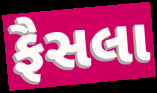
ફૈસલા